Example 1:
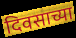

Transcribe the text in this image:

दिवसाच्या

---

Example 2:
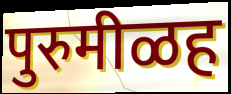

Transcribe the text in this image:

पुरुमीळह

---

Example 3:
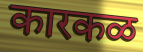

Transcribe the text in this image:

कारकळ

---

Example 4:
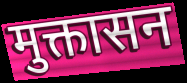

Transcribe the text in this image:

मुक्तासन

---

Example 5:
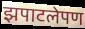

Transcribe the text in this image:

झपाटलेपण